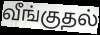
வீங்குதல்